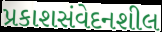
પ્રકાશસંવેદનશીલ